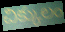
చిక్కులం